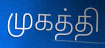
முகத்தி